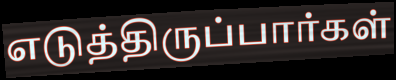
எடுத்திருப்பார்கள்